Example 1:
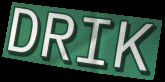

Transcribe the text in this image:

DRIK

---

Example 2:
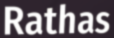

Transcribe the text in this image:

Rathas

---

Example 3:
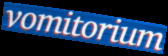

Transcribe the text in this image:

vomitorium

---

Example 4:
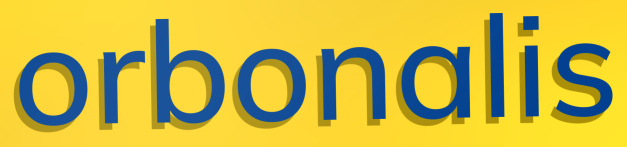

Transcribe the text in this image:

orbonalis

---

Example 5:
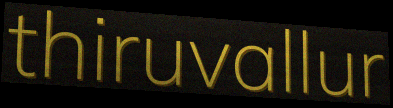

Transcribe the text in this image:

thiruvallur